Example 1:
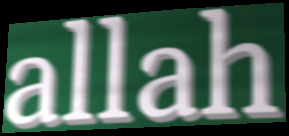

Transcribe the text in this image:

allah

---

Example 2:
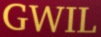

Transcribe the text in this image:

GWIL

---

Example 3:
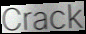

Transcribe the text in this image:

Crack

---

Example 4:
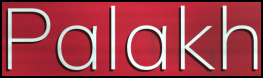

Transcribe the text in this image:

Palakh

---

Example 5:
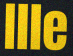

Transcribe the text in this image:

Ille